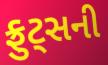
ફ્રુટ્સની